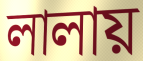
লালায়